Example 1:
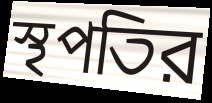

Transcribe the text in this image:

স্থপতির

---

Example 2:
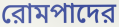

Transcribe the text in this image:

রোমপাদের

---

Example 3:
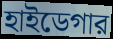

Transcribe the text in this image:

হাইডেগার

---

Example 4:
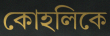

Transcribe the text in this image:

কোহলিকে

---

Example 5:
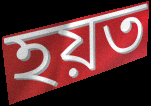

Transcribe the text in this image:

হয়ত